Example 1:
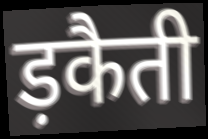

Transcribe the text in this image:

ड़कैती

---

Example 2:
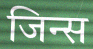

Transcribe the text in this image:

जिन्‍स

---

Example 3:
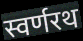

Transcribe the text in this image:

स्वर्णरथ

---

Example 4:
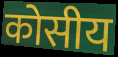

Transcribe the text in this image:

कोसीय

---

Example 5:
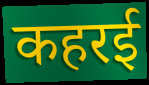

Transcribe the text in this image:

कहरई